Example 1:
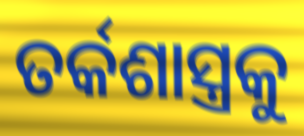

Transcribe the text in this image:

ତର୍କଶାସ୍ତ୍ରକୁ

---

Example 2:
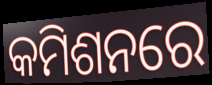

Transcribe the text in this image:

କମିଶନରେ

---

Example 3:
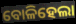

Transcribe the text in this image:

ବୋଳିହେଲା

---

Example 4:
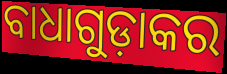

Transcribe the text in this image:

ବାଧାଗୁଡ଼ାକର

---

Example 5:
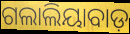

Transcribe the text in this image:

ଗଲାଲିୟାବାଡ଼